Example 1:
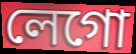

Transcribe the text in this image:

লেগো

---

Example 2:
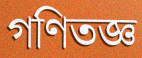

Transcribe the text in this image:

গণিতজ্ঞ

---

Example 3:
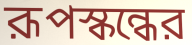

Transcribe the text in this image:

রূপস্কন্ধের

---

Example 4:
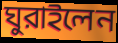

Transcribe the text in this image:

ঘুরাইলেন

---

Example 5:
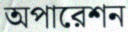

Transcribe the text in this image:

অপারেশন